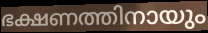
ഭക്ഷണത്തിനായും